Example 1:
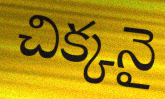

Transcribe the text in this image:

చిక్కనై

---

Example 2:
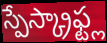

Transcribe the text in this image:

స్పేస్క్రాఫ్ట్ల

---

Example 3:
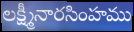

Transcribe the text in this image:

లక్ష్మీనారసింహము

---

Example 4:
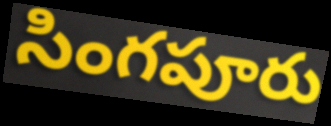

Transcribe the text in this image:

సింగపూరు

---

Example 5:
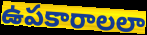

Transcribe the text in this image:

ఉపకారాలలా